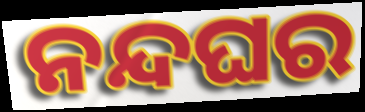
ନନ୍ଦଘର